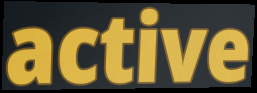
active